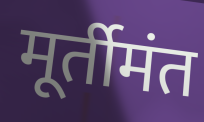
मूर्तीमंत